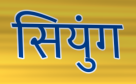
सियुंग